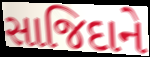
સાજિદાને